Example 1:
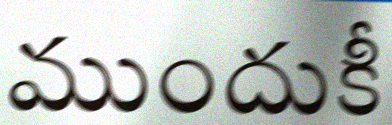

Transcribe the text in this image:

ముందుకీ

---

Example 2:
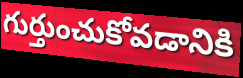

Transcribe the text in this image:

గుర్తుంచుకోవడానికి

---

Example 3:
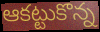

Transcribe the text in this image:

ఆకట్టుకొన్న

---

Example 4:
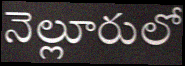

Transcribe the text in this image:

నెల్లూరులో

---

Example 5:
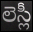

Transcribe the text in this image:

లెస్లీ